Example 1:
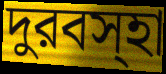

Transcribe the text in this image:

দুরবস্হা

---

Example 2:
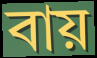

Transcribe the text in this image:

বায়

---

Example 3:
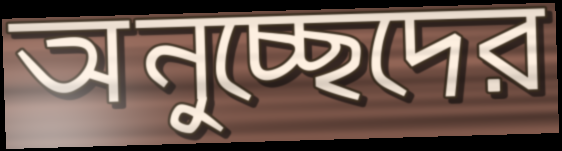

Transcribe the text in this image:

অনুচ্ছেদের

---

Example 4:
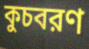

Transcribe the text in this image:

কুচবরণ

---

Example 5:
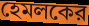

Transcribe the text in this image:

হেমলকের